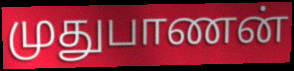
முதுபாணன்